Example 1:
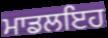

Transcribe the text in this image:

ਮਾਡਲਇਹ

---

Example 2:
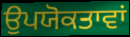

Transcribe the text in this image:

ਉਪਯੋਕਤਾਵਾਂ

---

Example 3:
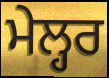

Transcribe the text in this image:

ਮੇਲ੍ਹਰ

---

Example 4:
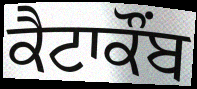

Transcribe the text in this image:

ਕੈਟਾਕੌਂਬ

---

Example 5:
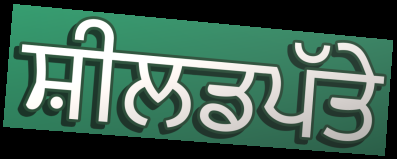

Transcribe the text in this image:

ਸ਼ੀਲਡਪੱਤੇ